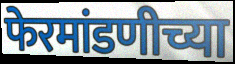
फेरमांडणीच्या